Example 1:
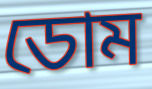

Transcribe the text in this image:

ডোম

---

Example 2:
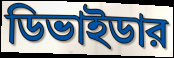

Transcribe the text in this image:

ডিভাইডার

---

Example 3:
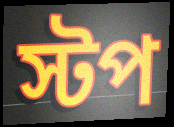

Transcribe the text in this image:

স্টপ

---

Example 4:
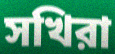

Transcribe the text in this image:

সখিরা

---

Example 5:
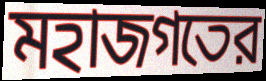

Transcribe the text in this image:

মহাজগতের